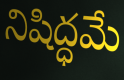
నిషిద్ధమే